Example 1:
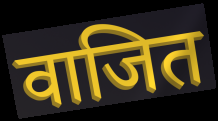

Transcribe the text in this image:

वाजित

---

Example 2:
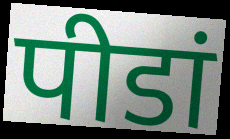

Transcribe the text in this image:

पीडां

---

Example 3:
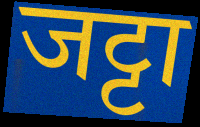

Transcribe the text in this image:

जट्टा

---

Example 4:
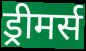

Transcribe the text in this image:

ड्रीमर्स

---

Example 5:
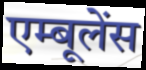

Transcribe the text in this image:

एम्बूलेंस